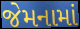
જેમનામાં